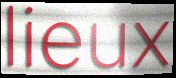
lieux